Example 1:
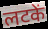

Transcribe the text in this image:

लटकें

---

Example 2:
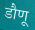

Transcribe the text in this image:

डौणू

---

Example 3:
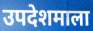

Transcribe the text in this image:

उपदेशमाला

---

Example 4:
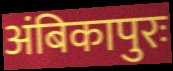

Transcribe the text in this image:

अंबिकापुरः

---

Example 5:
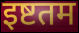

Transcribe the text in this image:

इष्टतम